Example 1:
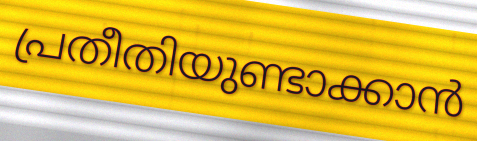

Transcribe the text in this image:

പ്രതീതിയുണ്ടാക്കാൻ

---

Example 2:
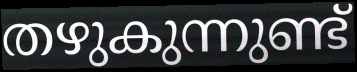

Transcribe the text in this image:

തഴുകുന്നുണ്ട്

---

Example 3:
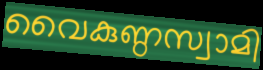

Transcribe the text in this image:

വൈകുണ്ഠസ്വാമി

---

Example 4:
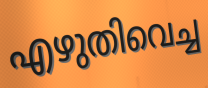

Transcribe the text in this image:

എഴുതിവെച്ച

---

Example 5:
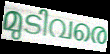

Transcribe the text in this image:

മുടിവരെ